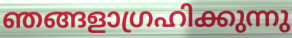
ഞങ്ങളാഗ്രഹിക്കുന്നു